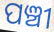
ପଞ୍ଚୀ